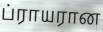
ப்ராயரான